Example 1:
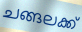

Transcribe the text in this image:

ചങ്ങലക്ക്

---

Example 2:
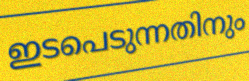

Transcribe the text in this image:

ഇടപെടുന്നതിനും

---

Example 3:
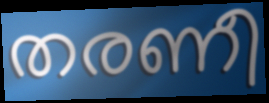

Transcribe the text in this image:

തരണീ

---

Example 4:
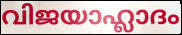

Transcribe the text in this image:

വിജയാഹ്ലാദം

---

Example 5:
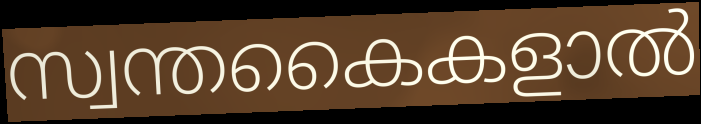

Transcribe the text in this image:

സ്വന്തകൈകളാൽ